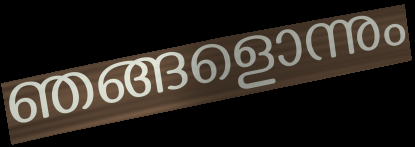
ഞങ്ങളൊന്നും